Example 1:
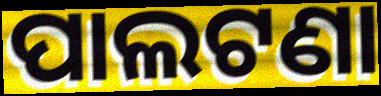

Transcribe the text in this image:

ପାଲଟଣା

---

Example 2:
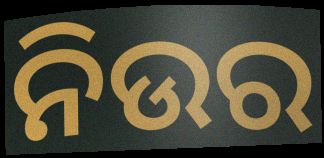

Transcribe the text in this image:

ନିଉର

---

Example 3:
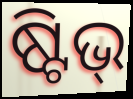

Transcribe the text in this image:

ଷ୍ଟିଭ୍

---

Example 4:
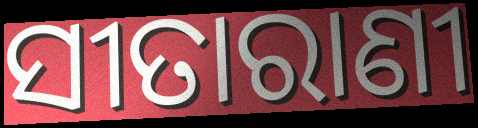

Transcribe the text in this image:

ସୀତାରାଣୀ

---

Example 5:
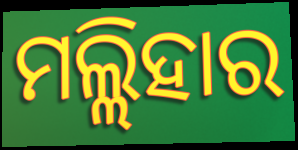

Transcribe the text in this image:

ମଲ୍ଲିହାର